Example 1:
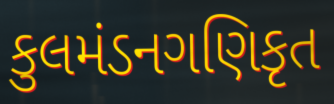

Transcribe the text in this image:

કુલમંડનગણિકૃત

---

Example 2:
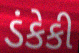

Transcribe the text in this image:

ડંકેકી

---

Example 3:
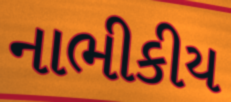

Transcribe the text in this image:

નાભીકીય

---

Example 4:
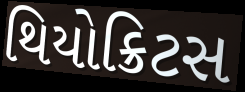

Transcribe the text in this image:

થિયોક્રિટસ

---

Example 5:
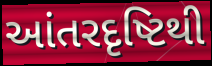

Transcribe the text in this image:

આંતરદૃષ્ટિથી